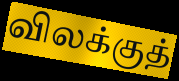
விலக்குத்